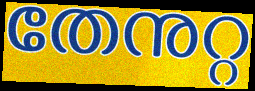
തേനുറ്റ